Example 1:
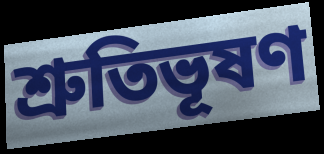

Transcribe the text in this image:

শ্রুতিভূষণ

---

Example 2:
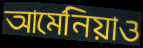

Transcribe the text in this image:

আর্মেনিয়াও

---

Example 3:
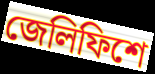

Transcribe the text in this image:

জেলিফিশে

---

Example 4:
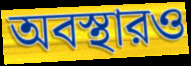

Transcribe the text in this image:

অবস্থারও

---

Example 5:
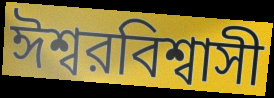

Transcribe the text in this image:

ঈশ্বরবিশ্বাসী